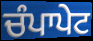
ਚੰਪਾਪੇਟ